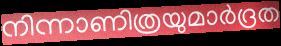
നിന്നാണിത്രയുമാർദ്രത